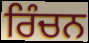
ਰਿੰਚਨ